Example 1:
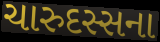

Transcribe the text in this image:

ચારુદસ્સના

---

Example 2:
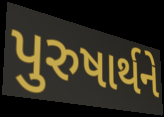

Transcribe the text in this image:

પુરુષાર્થને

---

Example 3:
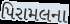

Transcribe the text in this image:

પિરામલના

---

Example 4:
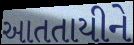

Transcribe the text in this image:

આતતાયીને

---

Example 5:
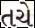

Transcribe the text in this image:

તચે